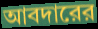
আবদারের